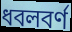
ধবলবর্ণ